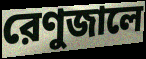
রেণুজালে